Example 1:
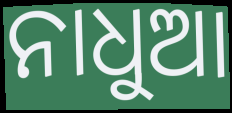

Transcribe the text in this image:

ନାଧୁଆ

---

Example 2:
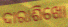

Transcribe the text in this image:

ଦାରାଶିଖୋ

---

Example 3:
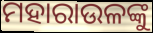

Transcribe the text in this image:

ମହାରାଉଳଙ୍କୁ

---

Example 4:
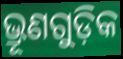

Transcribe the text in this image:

ଭ୍ରୂଣଗୁଡ଼ିକ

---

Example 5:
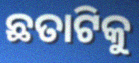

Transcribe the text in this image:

ଛତାଟିକୁ